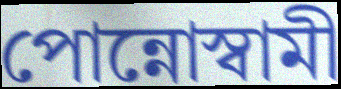
পোন্নোস্বামী